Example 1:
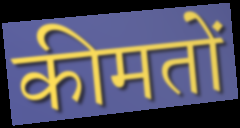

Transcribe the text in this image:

कीमतों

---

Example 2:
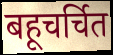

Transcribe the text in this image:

बहूचर्चित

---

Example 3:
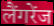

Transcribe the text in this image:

लैंगरेंज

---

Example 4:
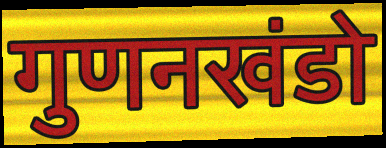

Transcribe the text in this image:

गुणनखंडो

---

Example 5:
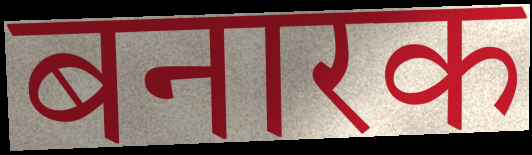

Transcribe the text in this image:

बनारक